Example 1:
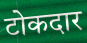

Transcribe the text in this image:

टोकदार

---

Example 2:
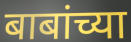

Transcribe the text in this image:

बाबांच्या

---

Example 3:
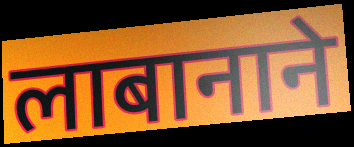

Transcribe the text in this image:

लाबानाने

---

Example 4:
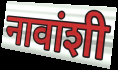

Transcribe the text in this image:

नावांशी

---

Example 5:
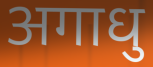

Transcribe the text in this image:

अगाधु